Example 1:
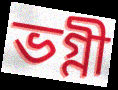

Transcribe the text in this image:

ভগ্নী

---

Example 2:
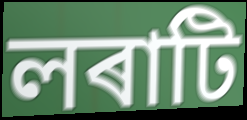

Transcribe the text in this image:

লৰাটি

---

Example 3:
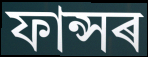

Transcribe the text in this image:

ফান্সৰ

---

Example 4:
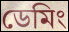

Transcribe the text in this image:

ডেমিং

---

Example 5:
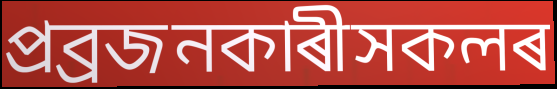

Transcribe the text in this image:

প্ৰব্ৰজনকাৰীসকলৰ